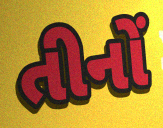
તીનોં